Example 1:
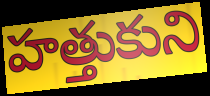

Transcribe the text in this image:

హత్తుకుని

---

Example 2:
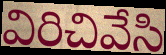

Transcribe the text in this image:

విరిచివేసి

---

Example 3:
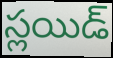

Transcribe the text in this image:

స్లయిడ్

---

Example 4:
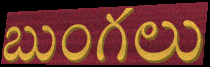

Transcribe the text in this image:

బుంగలు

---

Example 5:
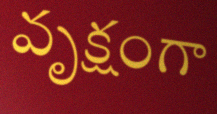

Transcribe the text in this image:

వృక్షంగా